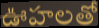
ఊహలతో